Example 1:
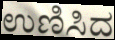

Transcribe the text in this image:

ಉಣಿಸಿದ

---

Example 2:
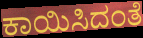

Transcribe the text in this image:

ಕಾಯಿಸಿದಂತೆ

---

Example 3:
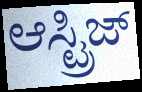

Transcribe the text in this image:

ಆಸ್ಟ್ರಿಜ್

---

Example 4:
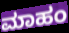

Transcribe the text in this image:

ಮಾಹಂ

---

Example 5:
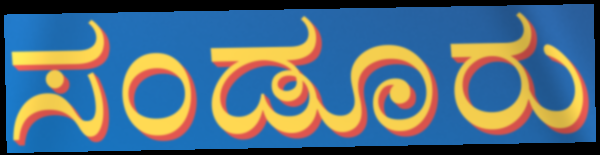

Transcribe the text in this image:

ಸಂಡೂರು